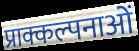
प्राक्कल्पनाओं